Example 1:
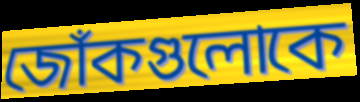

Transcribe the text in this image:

জোঁকগুলোকে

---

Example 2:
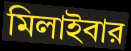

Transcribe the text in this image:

মিলাইবার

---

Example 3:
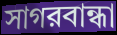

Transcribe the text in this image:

সাগরবান্ধা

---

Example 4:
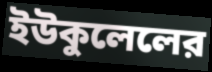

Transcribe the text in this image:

ইউকুলেলের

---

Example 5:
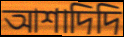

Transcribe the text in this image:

আশাদিদি